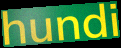
hundi